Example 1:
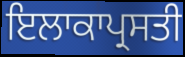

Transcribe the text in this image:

ਇਲਾਕਾਪ੍ਰਸਤੀ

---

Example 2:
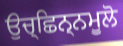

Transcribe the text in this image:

ਉਚ੍ਛਿਨ੍ਨਮੂਲੋ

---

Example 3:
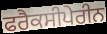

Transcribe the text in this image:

ਫਰੈਕਸੀਪੇਰੀਨ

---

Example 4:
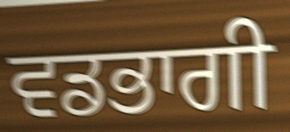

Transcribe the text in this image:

ਵਡਭਾਗੀ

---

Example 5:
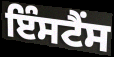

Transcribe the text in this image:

ਇੰਸਟੈਂਸ